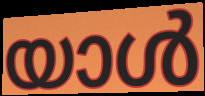
യാൾ